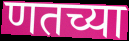
णतच्या